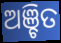
ଅଞ୍ଚିତ